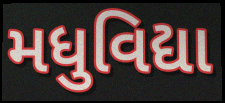
મધુવિદ્યા